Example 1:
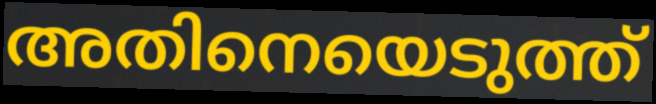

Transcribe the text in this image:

അതിനെയെടുത്ത്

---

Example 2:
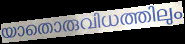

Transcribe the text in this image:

യാതൊരുവിധത്തിലും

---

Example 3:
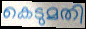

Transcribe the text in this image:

കെടുമതി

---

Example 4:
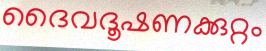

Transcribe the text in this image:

ദൈവദൂഷണക്കുറ്റം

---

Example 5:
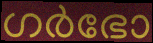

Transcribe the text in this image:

ഗർഭോ